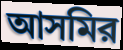
আসমির